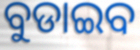
ବୁଡାଇବ